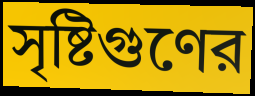
সৃষ্টিগুণের